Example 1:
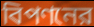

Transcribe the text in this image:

বিপণনের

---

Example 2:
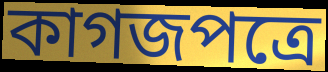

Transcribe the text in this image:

কাগজপত্রে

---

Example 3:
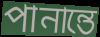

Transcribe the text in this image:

পানান্তে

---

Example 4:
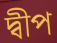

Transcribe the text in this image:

দ্বীপ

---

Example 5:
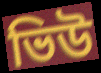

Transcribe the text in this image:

ভিউ